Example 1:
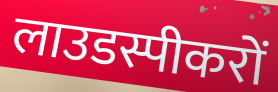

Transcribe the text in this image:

लाउडस्पीकरों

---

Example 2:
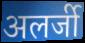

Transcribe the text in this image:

अलर्जी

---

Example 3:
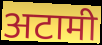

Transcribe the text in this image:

अटामी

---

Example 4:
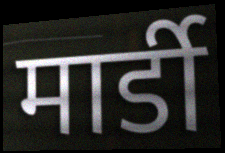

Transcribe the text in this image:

मार्डी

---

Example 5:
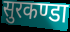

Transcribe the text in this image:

सुरकण्डा